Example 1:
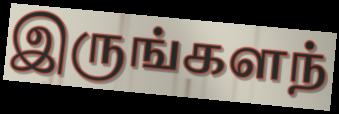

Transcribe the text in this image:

இருங்களந்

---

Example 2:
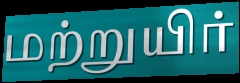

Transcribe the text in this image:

மற்றுயிர்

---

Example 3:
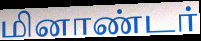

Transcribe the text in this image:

மினாண்டர்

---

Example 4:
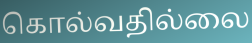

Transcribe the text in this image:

கொல்வதில்லை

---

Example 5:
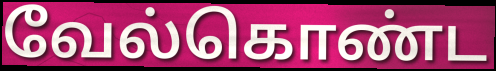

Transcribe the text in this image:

வேல்கொண்ட